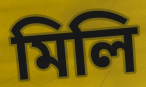
মিলি